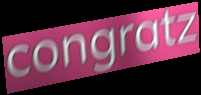
congratz